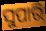
ସୁପାରି